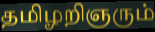
தமிழறிஞரும்